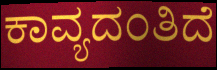
ಕಾವ್ಯದಂತಿದೆ